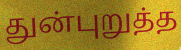
துன்புறுத்த